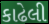
કાઢેલી